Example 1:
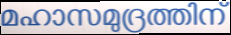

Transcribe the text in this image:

മഹാസമുദ്രത്തിന്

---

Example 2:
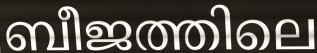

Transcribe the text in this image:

ബീജത്തിലെ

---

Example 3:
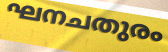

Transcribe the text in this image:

ഘനചതുരം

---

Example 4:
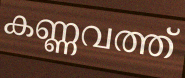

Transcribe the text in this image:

കണ്ണവത്ത്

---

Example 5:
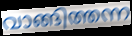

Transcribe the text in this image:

വാങ്ങിത്തന്ന